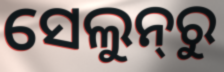
ସେଲୁନ୍‌ରୁ